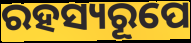
ରହସ୍ୟରୂପେ